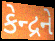
કેન્દ્રને